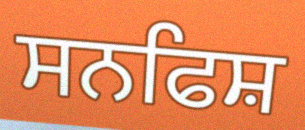
ਸਨਫਿਸ਼